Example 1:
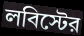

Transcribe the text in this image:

লবিস্টের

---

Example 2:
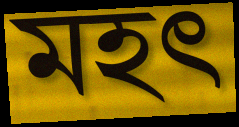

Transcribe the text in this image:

মহত্‍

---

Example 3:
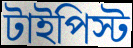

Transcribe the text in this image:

টাইপিস্ট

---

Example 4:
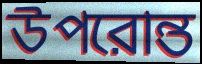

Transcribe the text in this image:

উপরোন্ত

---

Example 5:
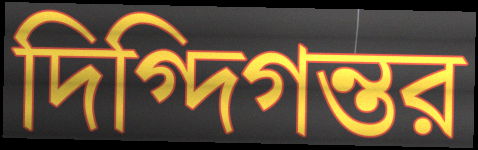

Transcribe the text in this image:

দিগ্দিগন্তর